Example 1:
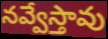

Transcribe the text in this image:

నవ్వేస్తావు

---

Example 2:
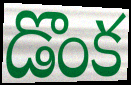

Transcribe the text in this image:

డొంక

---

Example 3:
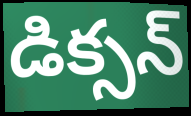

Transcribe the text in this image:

డిక్సన్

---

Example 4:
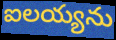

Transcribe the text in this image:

ఐలయ్యను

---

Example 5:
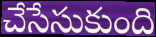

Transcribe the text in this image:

చేసేసుకుంది